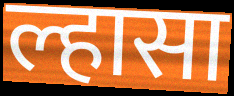
ल्हासा